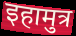
इहामुत्र